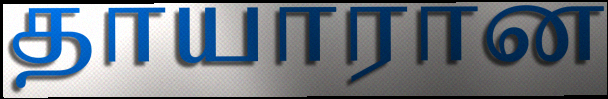
தாயாரான